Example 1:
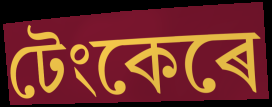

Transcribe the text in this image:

টেংকেৰে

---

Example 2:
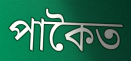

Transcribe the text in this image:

পাকৈত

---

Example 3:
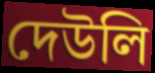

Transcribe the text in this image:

দেউলি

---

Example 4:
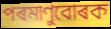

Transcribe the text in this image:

পৰমাণুবোৰক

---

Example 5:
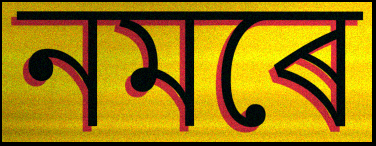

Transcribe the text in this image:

নমৰে